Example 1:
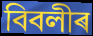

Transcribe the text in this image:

বিবলীৰ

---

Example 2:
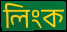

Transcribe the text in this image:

লিংক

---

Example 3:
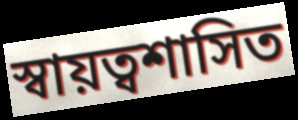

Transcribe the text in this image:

স্বায়ত্বশাসিত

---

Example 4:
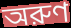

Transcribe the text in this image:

অৰুণ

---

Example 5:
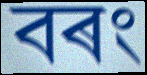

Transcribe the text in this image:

বৰং